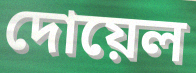
দোয়েল